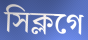
সিক্লগে